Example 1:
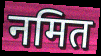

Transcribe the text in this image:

नमित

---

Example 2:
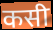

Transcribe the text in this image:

कसी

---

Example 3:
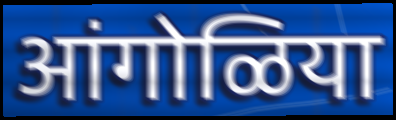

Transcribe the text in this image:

आंगोळिया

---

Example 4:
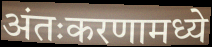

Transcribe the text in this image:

अंतःकरणामध्ये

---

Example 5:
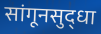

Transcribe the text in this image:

सांगूनसुद्धा